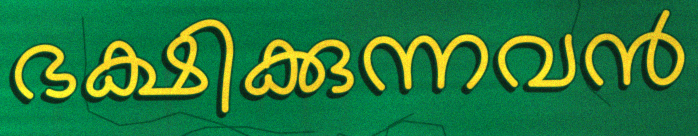
ഭക്ഷിക്കുന്നവൻ